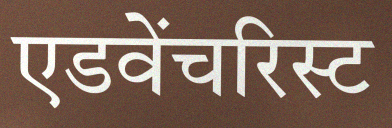
एडवेंचरिस्ट